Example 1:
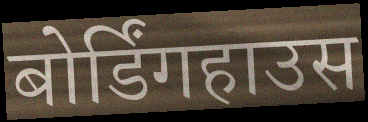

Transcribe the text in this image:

बोर्डिंगहाउस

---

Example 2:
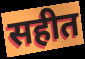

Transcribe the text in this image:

सहीत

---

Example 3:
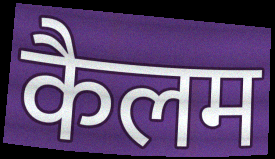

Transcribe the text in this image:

कैलम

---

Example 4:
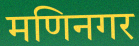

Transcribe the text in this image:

मणिनगर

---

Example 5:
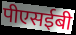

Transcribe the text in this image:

पीएसईबी